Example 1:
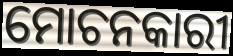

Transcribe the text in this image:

ମୋଚନକାରୀ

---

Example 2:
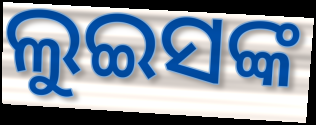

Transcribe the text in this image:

ଲୁଇସଙ୍କ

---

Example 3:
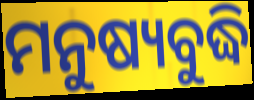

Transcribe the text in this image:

ମନୁଷ୍ୟବୁଦ୍ଧି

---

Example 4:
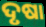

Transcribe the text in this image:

ଦୃଷା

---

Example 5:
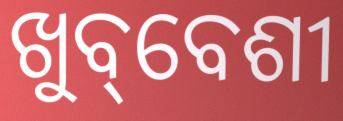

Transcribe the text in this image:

ଖୁବ୍‌ବେଶୀ